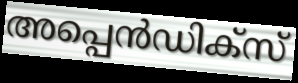
അപ്പെൻഡിക്സ്